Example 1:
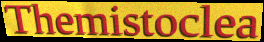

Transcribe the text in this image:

Themistoclea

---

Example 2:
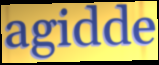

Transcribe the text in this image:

agidde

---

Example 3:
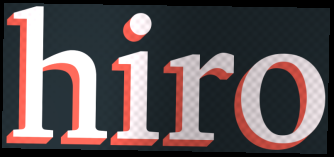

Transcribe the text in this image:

hiro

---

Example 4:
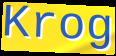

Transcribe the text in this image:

Krog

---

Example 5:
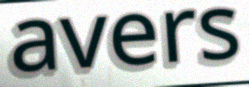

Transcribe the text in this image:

avers